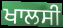
ਖਾਲਸੀ